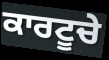
ਕਾਰਟੂਚੇ